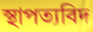
স্থাপত্যবিদ